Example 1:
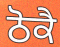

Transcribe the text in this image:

ਠੋਕੈ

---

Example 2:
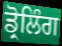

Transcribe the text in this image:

ਡ੍ਰੋਲਿੰਗ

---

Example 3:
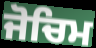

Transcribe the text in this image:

ਜੋਚਿਮ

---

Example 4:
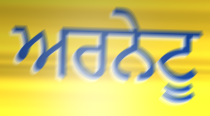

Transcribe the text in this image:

ਅਰਨੇਟੂ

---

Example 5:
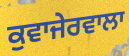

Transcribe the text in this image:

ਕੁਵਾਜੇਰਵਾਲਾ